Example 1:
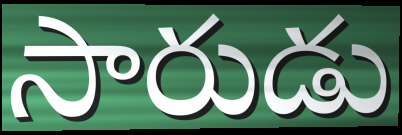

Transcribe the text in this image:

సారుడు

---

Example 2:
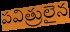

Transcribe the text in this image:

పవిత్రులైన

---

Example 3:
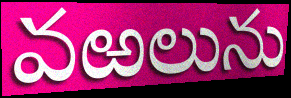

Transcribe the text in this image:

వఱలును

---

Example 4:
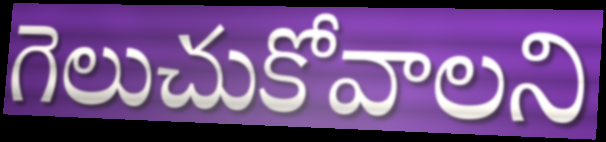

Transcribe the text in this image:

గెలుచుకోవాలని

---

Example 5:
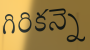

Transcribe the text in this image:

గిరికన్నె